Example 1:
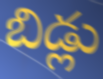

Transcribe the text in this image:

బిడ్లు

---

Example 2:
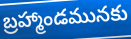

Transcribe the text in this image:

బ్రహ్మాండమునకు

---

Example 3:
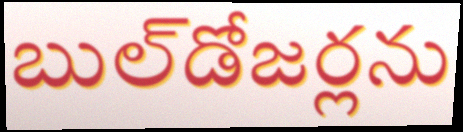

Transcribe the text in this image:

బుల్‌డోజర్లను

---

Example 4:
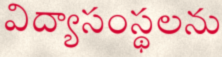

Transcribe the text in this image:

విద్యాసంస్థలను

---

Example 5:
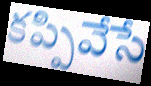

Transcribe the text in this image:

కప్పివేసే